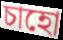
চাহো